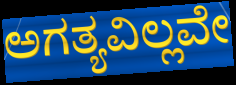
ಅಗತ್ಯವಿಲ್ಲವೇ